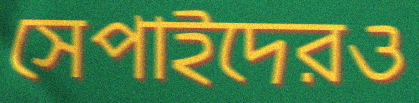
সেপাইদেরও